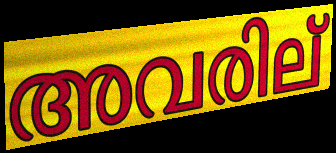
അവരില്